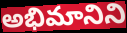
అభిమానిని